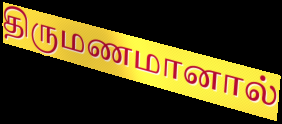
திருமணமானால்